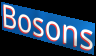
Bosons